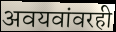
अवयवांवरही